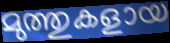
മുത്തുകളായ